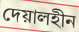
দেয়ালহীন